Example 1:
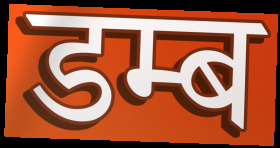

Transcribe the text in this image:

डम्ब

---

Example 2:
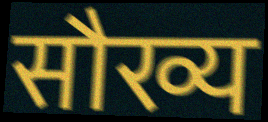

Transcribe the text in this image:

सौख्य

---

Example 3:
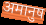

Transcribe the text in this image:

अमानुष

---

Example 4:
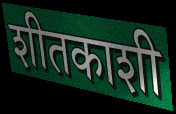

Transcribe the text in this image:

शीतकाशी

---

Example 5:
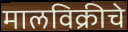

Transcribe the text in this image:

मालविक्रीचे